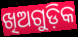
ଖିଅଗୁଡ଼ିକ